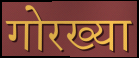
गोरख्या